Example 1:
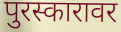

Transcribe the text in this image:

पुरस्कारावर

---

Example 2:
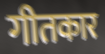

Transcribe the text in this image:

गीतकार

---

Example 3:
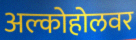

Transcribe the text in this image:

अल्कोहोलवर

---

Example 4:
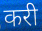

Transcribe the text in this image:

करी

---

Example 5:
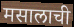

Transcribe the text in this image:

मसालाची